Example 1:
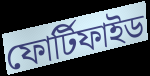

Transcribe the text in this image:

ফোর্টিফাইড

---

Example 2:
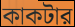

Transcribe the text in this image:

কাকটার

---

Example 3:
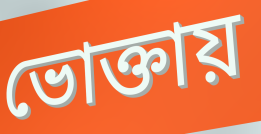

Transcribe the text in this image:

ভোক্তায়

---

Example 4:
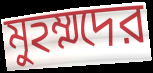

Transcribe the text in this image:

মুহম্মদের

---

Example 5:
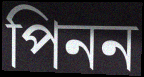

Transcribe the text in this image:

পিনন